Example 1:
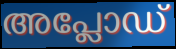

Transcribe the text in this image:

അപ്ലോഡ്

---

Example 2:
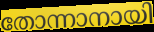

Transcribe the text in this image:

തോന്നാനായി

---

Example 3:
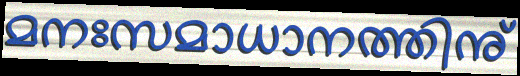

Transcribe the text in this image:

മനഃസമാധാനത്തിനു്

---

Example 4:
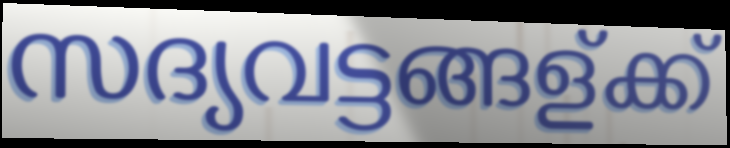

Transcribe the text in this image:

സദ്യവട്ടങ്ങള്ക്ക്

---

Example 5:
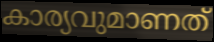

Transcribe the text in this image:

കാര്യവുമാണത്